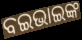
ବଇଭାଇଙ୍କ